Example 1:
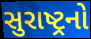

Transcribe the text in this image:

સુરાષ્ટ્રનો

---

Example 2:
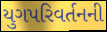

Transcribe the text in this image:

યુગપરિવર્તનની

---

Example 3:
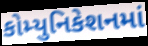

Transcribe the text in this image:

કોમ્યુનિકેશનમાં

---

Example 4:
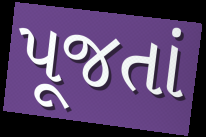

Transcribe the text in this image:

પૂજતાં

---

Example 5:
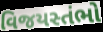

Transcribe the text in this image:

વિજયસ્તંભો